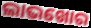
ଲାଭଖୋର